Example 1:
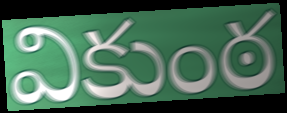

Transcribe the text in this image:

వికుంఠ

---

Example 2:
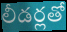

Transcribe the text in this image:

లీడర్లతో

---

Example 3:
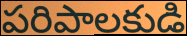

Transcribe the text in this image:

పరిపాలకుడి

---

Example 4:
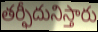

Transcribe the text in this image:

తర్ఫీదునిస్తారు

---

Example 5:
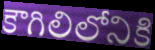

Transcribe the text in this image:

కౌగిలిలోనికి